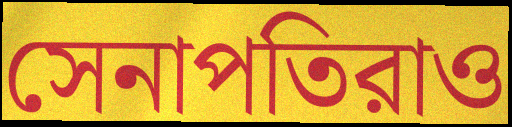
সেনাপতিরাও